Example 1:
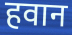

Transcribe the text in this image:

हवान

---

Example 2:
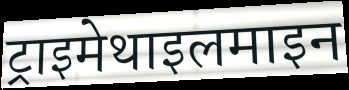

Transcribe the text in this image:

ट्राइमेथाइलमाइन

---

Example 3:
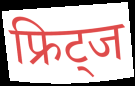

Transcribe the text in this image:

फ्रिट्ज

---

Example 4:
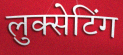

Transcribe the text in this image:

लुक्सेटिंग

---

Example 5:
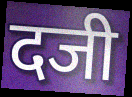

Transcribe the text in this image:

दजी